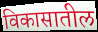
विकासातील